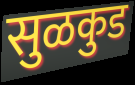
सुळकुड